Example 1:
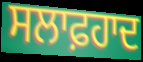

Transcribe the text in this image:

ਸਲਾਫ਼ਹਾਦ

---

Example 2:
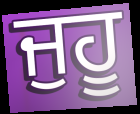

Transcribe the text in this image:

ਜੁਹੂ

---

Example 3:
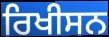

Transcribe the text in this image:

ਰਿਖੀਸਨ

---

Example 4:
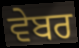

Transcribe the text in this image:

ਵੇਬਰ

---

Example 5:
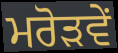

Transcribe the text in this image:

ਮਰੋੜਵੇਂ